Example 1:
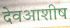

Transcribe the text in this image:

देवआशीष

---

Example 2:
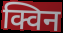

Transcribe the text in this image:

क्विन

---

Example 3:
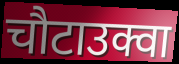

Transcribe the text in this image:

चौटाउक्वा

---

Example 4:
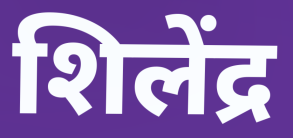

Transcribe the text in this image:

शिलेंद्र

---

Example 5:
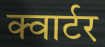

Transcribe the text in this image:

क्‍वार्टर